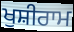
ਖੁਸ਼ੀਰਾਮ